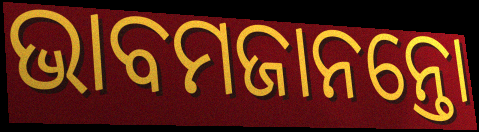
ଭାବମଜାନନ୍ତୋ